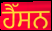
ਹੈੱਸਨ